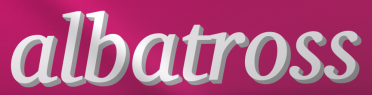
albatross